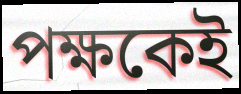
পক্ষকেই